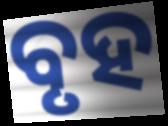
ବୃହ